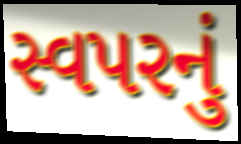
સ્વપરનું